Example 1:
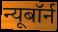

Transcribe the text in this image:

न्यूबॉर्न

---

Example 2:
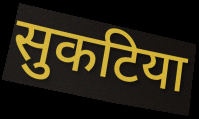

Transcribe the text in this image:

सुकटिया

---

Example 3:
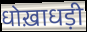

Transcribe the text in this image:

धोख़ाधड़ी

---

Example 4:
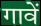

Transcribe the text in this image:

गावें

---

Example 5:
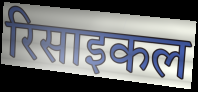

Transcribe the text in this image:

रिसाइकल